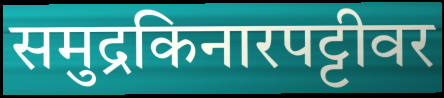
समुद्रकिनारपट्टीवर